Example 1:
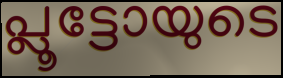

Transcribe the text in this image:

പ്ലൂട്ടോയുടെ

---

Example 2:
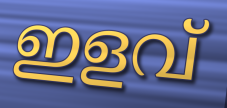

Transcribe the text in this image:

ഇളവ്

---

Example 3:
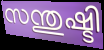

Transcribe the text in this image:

സന്തുഷ്ടി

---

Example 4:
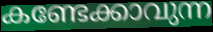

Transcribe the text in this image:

കണ്ടേക്കാവുന്ന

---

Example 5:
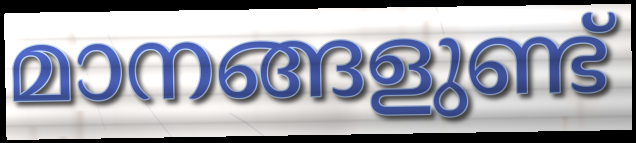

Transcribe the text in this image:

മാനങ്ങളുണ്ട്